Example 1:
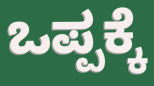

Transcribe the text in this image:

ಒಪ್ಪಕ್ಕೆ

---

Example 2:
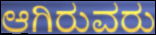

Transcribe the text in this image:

ಆಗಿರುವರು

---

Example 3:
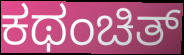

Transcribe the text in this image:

ಕಥಂಚಿತ್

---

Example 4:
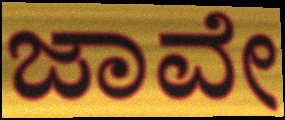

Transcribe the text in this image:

ಜಾವೇ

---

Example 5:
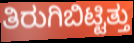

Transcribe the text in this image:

ತಿರುಗಿಬಿಟ್ಟಿತ್ತು